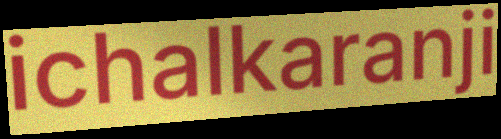
ichalkaranji